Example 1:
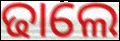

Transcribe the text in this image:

ଢାଲେ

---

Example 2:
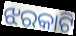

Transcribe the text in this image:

ଝରକାଟି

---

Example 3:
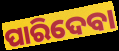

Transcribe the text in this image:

ପାରିଦେବା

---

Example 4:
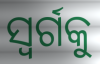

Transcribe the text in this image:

ସ୍ୱର୍ଗକୁ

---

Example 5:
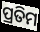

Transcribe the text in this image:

ପ୍ରତିମ